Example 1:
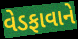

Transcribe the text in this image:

વેડફાવાને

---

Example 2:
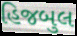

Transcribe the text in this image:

હિજબુલ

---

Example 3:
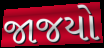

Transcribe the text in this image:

જાજયો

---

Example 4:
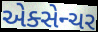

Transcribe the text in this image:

એક્સેન્ચર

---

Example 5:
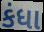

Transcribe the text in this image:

કંધા